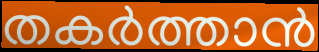
തകർത്താൻ